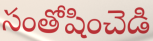
సంతోషించెడి